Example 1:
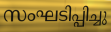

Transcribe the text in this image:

സംഘടിപ്പിച്ചു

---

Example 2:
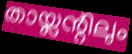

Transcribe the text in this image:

തായ്ലന്റിലും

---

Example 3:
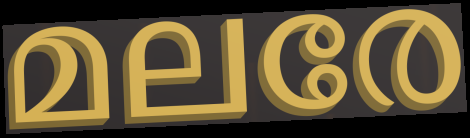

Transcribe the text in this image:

മലരേ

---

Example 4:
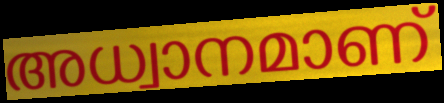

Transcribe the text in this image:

അധ്വാനമാണ്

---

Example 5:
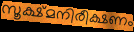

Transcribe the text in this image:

സൂക്ഷ്മനിരീക്ഷണം